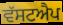
ਵੱਸਟਐਪ